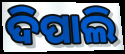
ଦିପାଲି